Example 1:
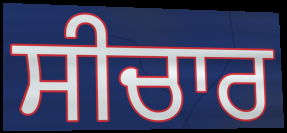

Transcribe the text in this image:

ਸੀਚਾਰ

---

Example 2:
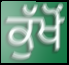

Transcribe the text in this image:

ਕੁੱਖੋਂ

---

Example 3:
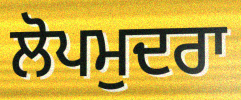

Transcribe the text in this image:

ਲੋਪਮੁਦਰਾ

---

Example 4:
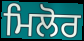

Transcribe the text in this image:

ਮਿਲੋਰ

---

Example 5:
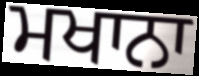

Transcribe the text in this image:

ਮਖਾਨਾ